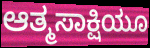
ಆತ್ಮಸಾಕ್ಷಿಯೂ